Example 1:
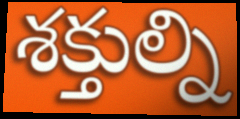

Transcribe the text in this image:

శక్తుల్ని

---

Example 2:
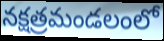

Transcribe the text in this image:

నక్షత్రమండలంలో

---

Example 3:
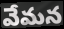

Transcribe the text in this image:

వేమన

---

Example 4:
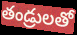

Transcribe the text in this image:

తండ్రులతో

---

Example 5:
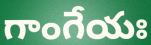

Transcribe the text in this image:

గాంగేయః